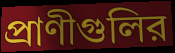
প্রাণীগুলির